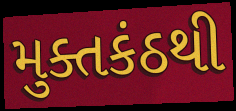
મુક્તકંઠથી